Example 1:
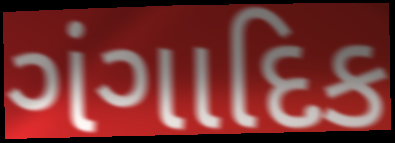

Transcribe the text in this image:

ગંગાદિક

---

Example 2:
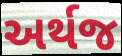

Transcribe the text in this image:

અર્થજ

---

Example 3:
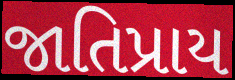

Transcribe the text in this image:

જાતિપ્રાય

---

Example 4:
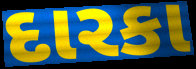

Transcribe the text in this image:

દારકા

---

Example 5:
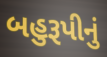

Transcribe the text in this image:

બહુરૂપીનું